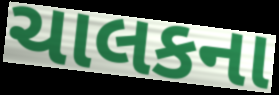
ચાલકના